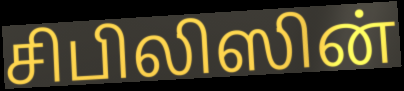
சிபிலிஸின்